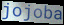
jojoba